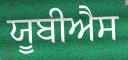
ਯੂਬੀਐਸ